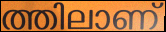
ത്തിലാണ്